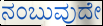
ನಂಬುವುದೇ